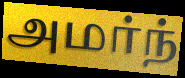
அமர்ந்